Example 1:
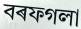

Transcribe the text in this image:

বৰফগলা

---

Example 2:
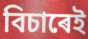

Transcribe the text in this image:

বিচাৰেই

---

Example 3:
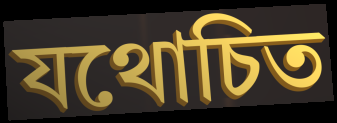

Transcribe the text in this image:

যথোচিত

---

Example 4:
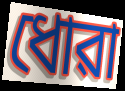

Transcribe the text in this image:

ধোৱা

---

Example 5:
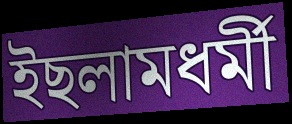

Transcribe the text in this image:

ইছলামধৰ্মী